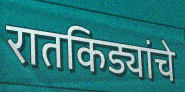
रातकिड्यांचे